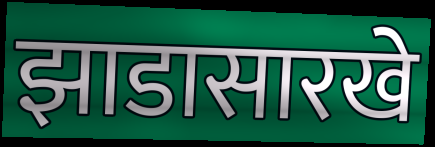
झाडासारखे